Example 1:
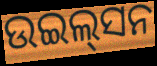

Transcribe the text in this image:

ଉଇଲ୍‌ସନ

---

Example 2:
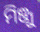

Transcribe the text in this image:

ମିଞ୍ଜୁ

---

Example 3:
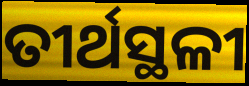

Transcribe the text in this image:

ତୀର୍ଥସ୍ଥଳୀ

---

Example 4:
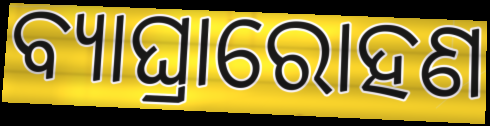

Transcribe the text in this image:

ବ୍ୟାଘ୍ରାରୋହଣ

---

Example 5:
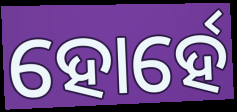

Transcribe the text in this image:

ହୋର୍ହେ